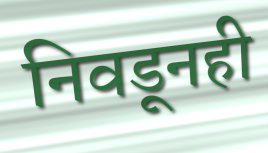
निवडूनही